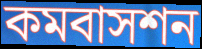
কমবাসশন